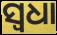
ସ୍ୱଧା